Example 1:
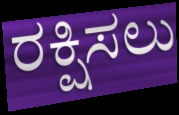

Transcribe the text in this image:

ರಕ್ಷಿಸಲು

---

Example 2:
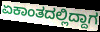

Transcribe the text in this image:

ಏಕಾಂತದಲ್ಲಿದ್ದಾಗ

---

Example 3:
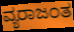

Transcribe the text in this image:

ವ್ಯರಾಜಂತ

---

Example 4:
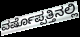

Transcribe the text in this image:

ವರ್ಷೊಪ್ಪತ್ತಿನಲ್ಲಿ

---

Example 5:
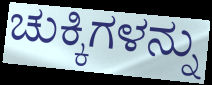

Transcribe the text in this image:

ಚುಕ್ಕಿಗಳನ್ನು